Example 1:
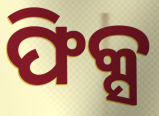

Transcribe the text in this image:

ଫିକ୍ସ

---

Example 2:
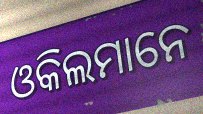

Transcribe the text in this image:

ଓକିଲମାନେ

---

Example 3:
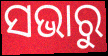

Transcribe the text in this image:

ସଭାରୁ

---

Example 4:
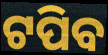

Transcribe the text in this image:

ଟପିବ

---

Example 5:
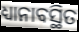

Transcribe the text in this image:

ଧ୍ୟାନାବସ୍ଥିତ